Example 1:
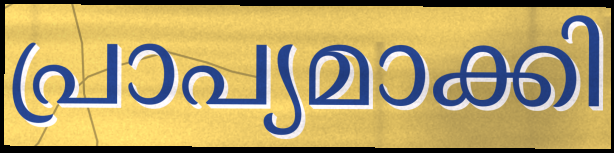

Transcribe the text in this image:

പ്രാപ്യമാക്കി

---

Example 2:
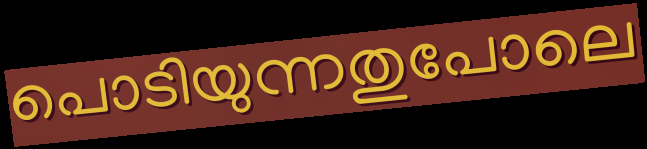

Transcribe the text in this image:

പൊടിയുന്നതുപോലെ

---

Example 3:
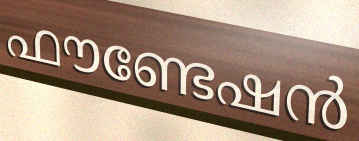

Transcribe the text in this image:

ഫൗണ്ടേഷൻ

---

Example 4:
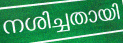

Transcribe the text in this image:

നശിച്ചതായി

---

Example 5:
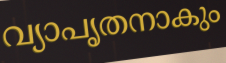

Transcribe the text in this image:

വ്യാപൃതനാകും